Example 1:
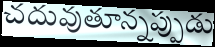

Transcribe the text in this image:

చదువుతూన్నప్పుడు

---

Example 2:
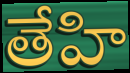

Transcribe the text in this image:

తేహి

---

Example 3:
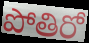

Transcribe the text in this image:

పోతిరో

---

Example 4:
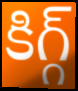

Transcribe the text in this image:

కిగ్గ్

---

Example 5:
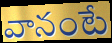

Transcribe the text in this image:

వానంటే